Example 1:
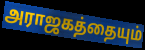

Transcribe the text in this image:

அராஜகத்தையும்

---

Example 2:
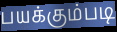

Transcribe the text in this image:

பயக்கும்படி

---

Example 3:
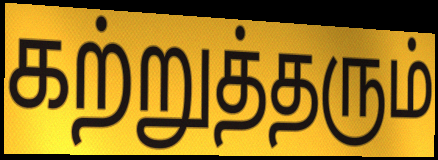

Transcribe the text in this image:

கற்றுத்தரும்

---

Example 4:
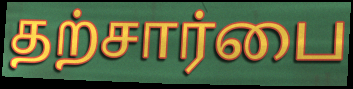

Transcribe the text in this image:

தற்சார்பை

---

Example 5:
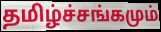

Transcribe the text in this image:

தமிழ்ச்சங்கமும்